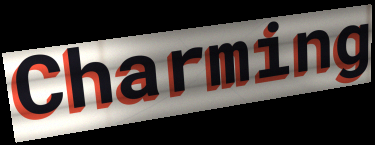
Charming